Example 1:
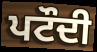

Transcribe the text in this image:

ਪਟੌਦੀ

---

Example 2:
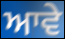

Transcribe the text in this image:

ਆਵੇ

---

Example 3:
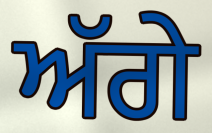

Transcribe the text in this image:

ਅੱਗੇ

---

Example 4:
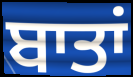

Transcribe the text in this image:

ਬਾਤਾਂ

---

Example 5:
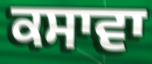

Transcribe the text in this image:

ਕਸਾਵਾ